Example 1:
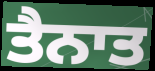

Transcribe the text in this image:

ਤੈਨਾਤ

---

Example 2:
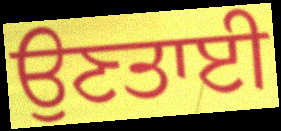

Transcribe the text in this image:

ਉਣਤਾਈ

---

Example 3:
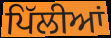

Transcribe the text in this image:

ਪਿੱਲੀਆਂ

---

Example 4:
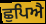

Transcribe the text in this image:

ਛੁਪਿਐ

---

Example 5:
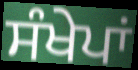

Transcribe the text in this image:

ਸੰਖੇਪਾਂ